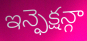
ఇన్ఫెక్షన్గా